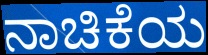
ನಾಚಿಕೆಯ